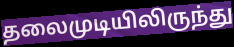
தலைமுடியிலிருந்து